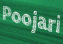
Poojari